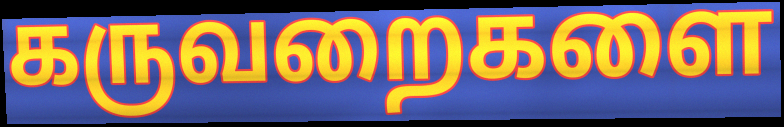
கருவறைகளை